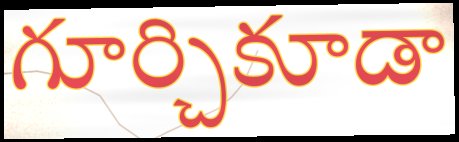
గూర్చికూడా